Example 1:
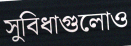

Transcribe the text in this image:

সুবিধাগুলোও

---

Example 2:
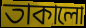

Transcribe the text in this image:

তাকালো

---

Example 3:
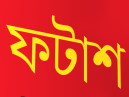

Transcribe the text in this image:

ফটাশ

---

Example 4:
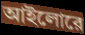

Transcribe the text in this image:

আইলোরে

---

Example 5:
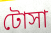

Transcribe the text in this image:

টোসা